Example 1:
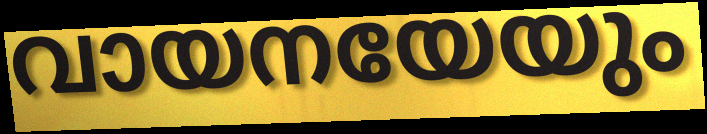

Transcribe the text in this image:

വായനയേയും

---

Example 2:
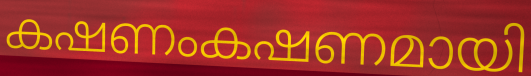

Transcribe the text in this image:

കഷണംകഷണമായി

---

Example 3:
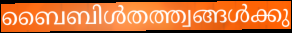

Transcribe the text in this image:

ബൈബിൾതത്ത്വങ്ങൾക്കു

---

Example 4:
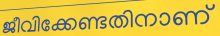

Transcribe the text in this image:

ജീവിക്കേണ്ടതിനാണ്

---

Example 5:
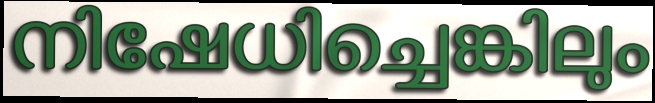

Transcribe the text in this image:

നിഷേധിച്ചെങ്കിലും